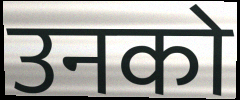
उनको